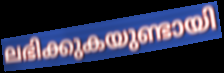
ലഭിക്കുകയുണ്ടായി